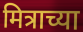
मित्राच्या